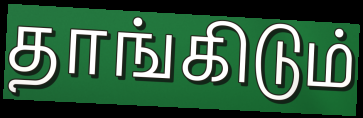
தாங்கிடும்